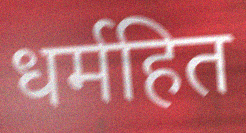
धर्महित